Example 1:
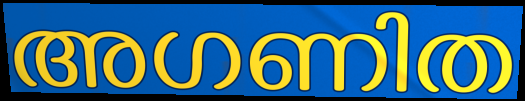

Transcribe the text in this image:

അഗണിത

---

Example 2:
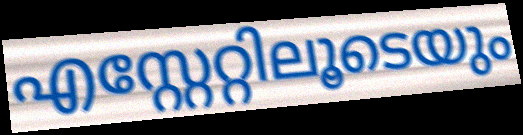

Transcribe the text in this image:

എസ്റ്റേറ്റിലൂടെയും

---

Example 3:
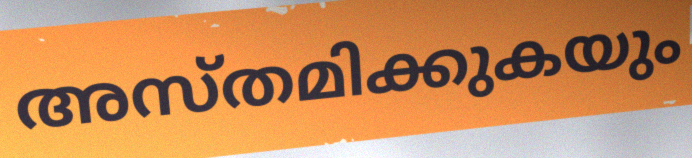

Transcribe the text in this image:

അസ്തമിക്കുകയും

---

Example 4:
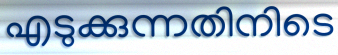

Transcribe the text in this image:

എടുക്കുന്നതിനിടെ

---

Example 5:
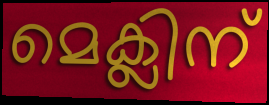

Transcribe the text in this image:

മെക്ലിന്